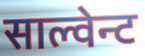
साल्वेन्ट